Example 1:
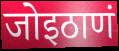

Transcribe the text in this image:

जोइठाणं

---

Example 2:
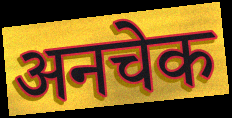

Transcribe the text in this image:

अनचेक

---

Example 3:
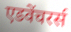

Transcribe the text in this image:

एडवेंचरर्स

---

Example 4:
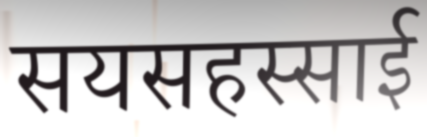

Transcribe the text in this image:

सयसहस्साई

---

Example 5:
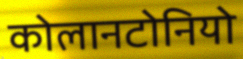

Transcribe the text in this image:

कोलानटोनियो